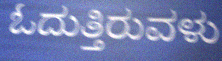
ಓದುತ್ತಿರುವಳು